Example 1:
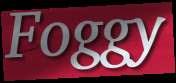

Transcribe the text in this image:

Foggy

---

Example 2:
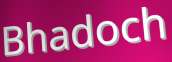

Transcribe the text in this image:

Bhadoch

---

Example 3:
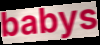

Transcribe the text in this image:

babys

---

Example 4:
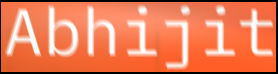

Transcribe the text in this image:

Abhijit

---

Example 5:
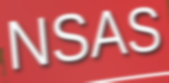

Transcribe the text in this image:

NSAS